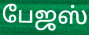
பேஜஸ்